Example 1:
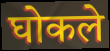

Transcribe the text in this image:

घोकले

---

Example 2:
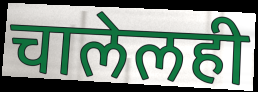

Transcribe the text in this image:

चालेलही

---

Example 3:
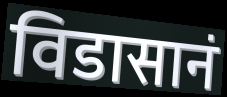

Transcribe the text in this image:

विडासानं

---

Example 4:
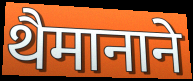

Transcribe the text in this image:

थैमानाने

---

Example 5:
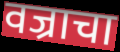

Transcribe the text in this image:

वज्राचा